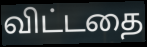
விட்டதை